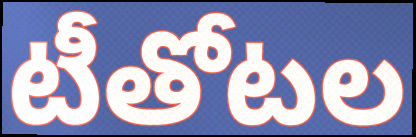
టీతోటల